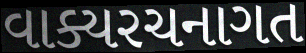
વાક્યરચનાગત